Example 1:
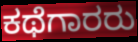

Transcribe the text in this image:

ಕಥೆಗಾರರು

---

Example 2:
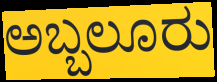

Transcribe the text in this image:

ಅಬ್ಬಲೂರು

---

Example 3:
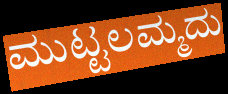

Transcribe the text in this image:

ಮುಟ್ಟಲಮ್ಮದು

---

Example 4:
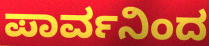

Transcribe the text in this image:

ಪಾರ್ವನಿಂದ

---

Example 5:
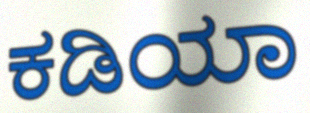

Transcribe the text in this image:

ಕಡಿಯಾ